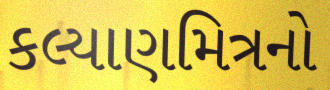
કલ્યાણમિત્રનો